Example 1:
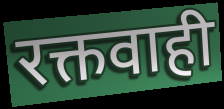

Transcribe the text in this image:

रक्तवाही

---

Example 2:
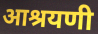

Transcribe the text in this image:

आश्रयणी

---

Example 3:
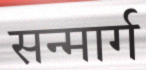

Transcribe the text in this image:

सन्‍मार्ग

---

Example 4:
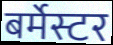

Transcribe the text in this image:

बर्मेस्टर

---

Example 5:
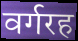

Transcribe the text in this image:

वर्गरह